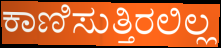
ಕಾಣಿಸುತ್ತಿರಲಿಲ್ಲ